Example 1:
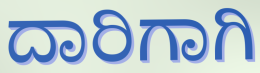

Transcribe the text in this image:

ದಾರಿಗಾಗಿ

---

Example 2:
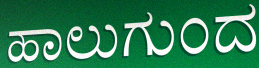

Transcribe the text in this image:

ಹಾಲುಗುಂದ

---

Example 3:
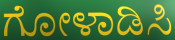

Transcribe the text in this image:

ಗೋಳಾಡಿಸಿ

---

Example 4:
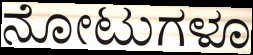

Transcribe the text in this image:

ನೋಟುಗಳೂ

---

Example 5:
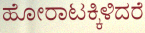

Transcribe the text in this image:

ಹೋರಾಟಕ್ಕಿಳಿದರೆ